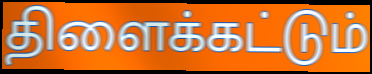
திளைக்கட்டும்